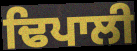
ਢਿਪਾਲੀ